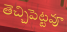
తెచ్చిపెట్టవూ